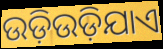
ଉଡ଼ିଉଡ଼ିଯାଏ